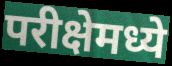
परीक्षेमध्ये